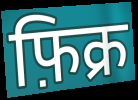
फ़िक्र